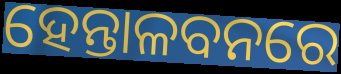
ହେନ୍ତାଳବନରେ